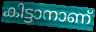
കിട്ടാനാണ്